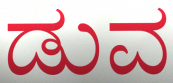
ಡುವ